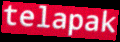
telapak